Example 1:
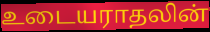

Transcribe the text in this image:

உடையராதலின்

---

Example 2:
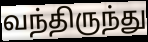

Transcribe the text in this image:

வந்திருந்து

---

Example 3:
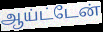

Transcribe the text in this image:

ஆய்ட்டேன்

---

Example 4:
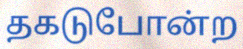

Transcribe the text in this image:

தகடுபோன்ற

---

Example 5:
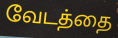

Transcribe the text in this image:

வேடத்தை